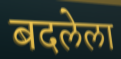
बदलेला